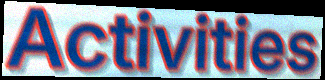
Activities